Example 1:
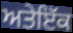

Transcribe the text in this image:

ਅਤੇਇੱਕ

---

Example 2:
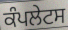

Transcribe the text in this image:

ਕੰਪਲੇਟਸ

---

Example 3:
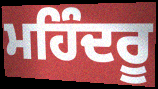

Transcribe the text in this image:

ਮਹਿੰਦਰੂ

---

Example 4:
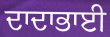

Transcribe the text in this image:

ਦਾਦਾਭਾਈ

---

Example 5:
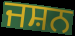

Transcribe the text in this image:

ਜਸ਼ਨ